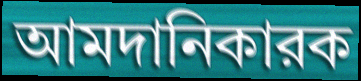
আমদানিকারক